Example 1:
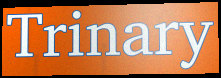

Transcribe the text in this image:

Trinary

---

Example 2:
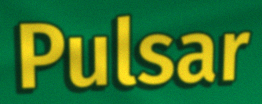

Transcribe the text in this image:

Pulsar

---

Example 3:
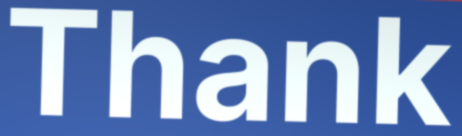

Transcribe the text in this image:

Thank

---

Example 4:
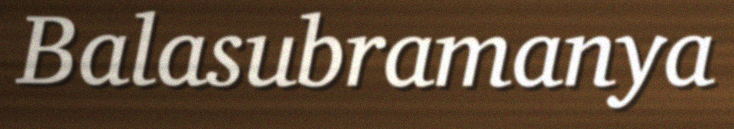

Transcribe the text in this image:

Balasubramanya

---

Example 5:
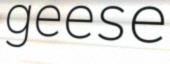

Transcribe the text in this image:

geese